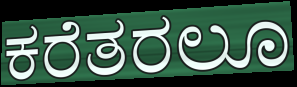
ಕರೆತರಲೂ